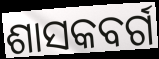
ଶାସକବର୍ଗ